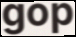
gop